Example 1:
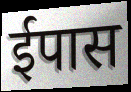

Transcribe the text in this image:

ईपास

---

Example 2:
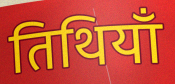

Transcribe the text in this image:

तिथियाँ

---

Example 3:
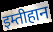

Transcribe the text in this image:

इम्तीहान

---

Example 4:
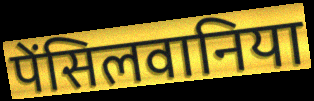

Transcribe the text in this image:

पेंसिलवानिया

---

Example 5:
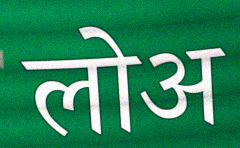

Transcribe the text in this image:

लोअ